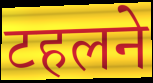
टहलने